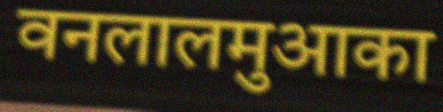
वनलालमुआका